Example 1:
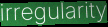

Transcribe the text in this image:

irregularity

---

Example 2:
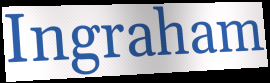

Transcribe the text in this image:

Ingraham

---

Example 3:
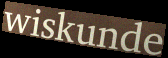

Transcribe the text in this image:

wiskunde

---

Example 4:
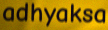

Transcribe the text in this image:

adhyaksa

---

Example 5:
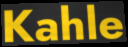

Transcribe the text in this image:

Kahle